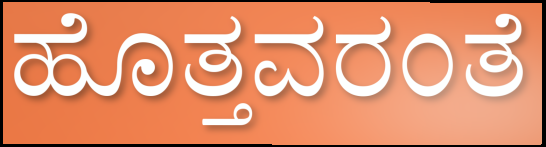
ಹೊತ್ತವರಂತೆ